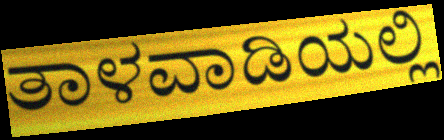
ತಾಳವಾಡಿಯಲ್ಲಿ